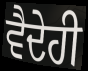
ਵੈਦੇਹੀ